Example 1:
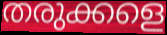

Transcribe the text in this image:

തരുക്കളെ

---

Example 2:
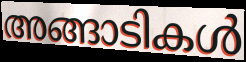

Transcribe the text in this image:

അങ്ങാടികൾ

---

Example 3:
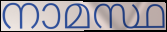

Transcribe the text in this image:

നാമസ്ഥ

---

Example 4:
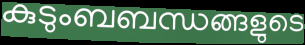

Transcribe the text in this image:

കുടുംബബന്ധങ്ങളുടെ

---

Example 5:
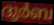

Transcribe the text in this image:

ദുർബ